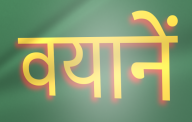
वयानें